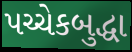
પચ્ચેકબુદ્ધા